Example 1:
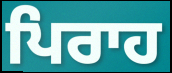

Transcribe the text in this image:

ਪਿਰਾਹ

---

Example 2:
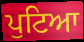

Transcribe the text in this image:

ਪੁਟਿਆ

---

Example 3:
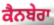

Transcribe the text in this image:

ਕੈਨਬੇਰਾ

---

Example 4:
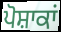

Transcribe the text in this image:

ਪੋਸ਼ਾਕਾਂ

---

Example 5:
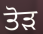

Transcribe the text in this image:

ਤੋੜ